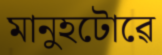
মানুহটোৱে